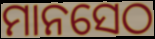
ମାନସେଠ